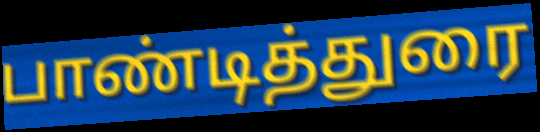
பாண்டித்துரை